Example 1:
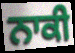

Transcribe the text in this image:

ਨਾਕੀ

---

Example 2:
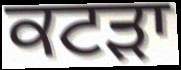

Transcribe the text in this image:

ਕਟੜਾ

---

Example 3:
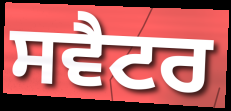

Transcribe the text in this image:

ਸਵੈਟਰ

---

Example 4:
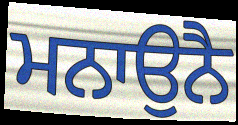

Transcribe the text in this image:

ਮਨਾਉਨੈ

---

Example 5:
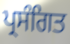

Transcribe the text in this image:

ਪ੍ਰਸੰਗਿਤ